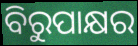
ବିରୁପାକ୍ଷର